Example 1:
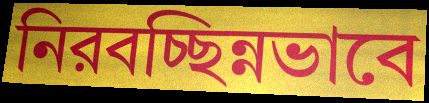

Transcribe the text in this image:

নিরবচ্ছিন্নভাবে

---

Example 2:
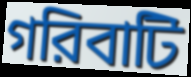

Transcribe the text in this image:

গরিবাটি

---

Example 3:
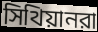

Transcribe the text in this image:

সিথিয়ানরা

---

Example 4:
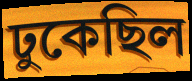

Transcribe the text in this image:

ঢুকেছিল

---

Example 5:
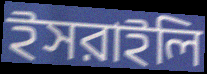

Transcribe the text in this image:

ইসরাইলি